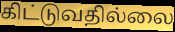
கிட்டுவதில்லை